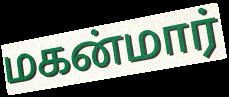
மகன்மார்